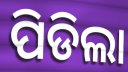
ପିଡିଲା